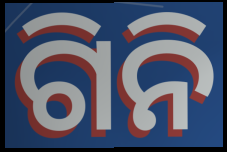
ଗିନି